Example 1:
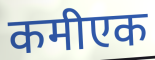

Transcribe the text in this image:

कमीएक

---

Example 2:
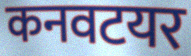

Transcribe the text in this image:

कनवटयर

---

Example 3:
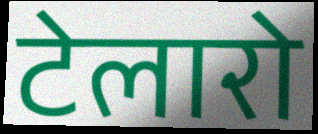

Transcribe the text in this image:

टेलारो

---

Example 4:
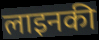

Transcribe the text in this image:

लाइनकी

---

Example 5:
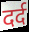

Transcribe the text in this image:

दर्द